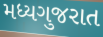
મધ્યગુજરાત